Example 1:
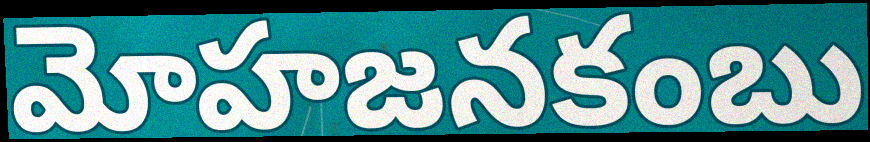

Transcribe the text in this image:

మోహజనకంబు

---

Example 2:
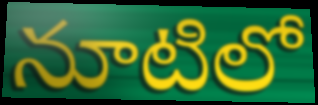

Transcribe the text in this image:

నూటిలో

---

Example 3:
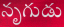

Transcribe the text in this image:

నృగుడు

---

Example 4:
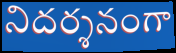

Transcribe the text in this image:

నిదర్శనంగా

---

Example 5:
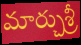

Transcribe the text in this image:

మార్చుశ్రీ